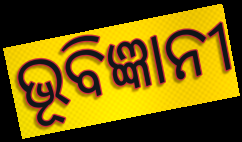
ଭୂବିଜ୍ଞାନୀ